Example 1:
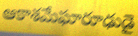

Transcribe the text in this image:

ఆకాశమేఘారూఢుడై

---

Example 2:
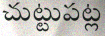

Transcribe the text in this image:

చుట్టుపట్ల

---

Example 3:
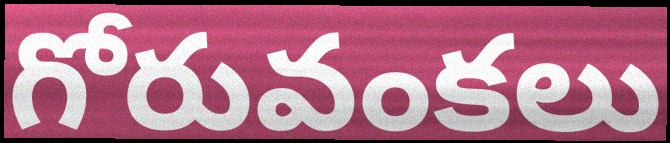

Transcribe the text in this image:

గోరువంకలు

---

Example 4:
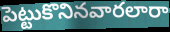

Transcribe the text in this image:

పెట్టుకొనినవారలారా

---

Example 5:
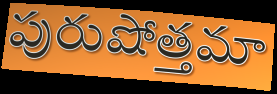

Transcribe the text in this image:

పురుషోత్తమా